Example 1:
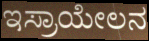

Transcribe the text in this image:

ಇಸ್ರಾಯೇಲನ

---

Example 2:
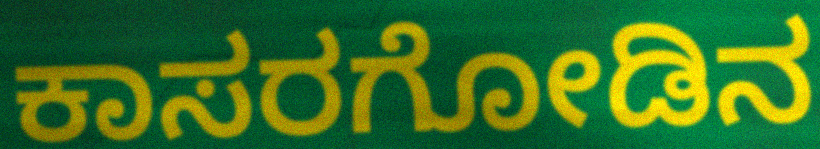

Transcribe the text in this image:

ಕಾಸರಗೋಡಿನ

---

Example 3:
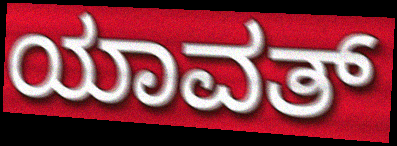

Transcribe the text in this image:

ಯಾವತ್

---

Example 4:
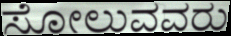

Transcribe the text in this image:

ಸೋಲುವವರು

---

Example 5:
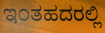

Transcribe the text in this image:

ಇಂತಹದರಲ್ಲಿ